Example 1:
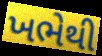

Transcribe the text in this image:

ખભેથી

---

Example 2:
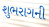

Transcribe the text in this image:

શુભરાગની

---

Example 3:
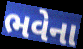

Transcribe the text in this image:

ભવેના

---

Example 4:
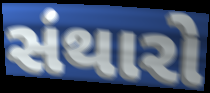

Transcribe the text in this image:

સંથારો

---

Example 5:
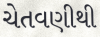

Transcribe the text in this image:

ચેતવણીથી